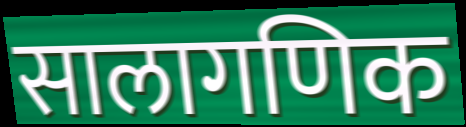
सालागणिक